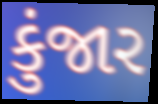
કુંજાર